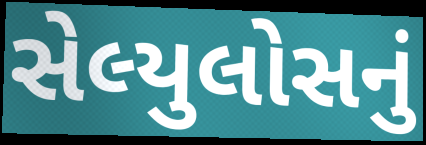
સેલ્યુલોસનું